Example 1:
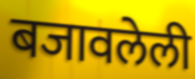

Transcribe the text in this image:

बजावलेली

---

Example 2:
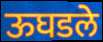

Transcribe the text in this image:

ऊघडले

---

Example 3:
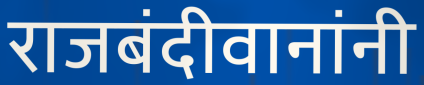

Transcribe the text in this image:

राजबंदीवानांनी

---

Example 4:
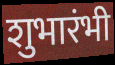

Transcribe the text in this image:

शुभारंभी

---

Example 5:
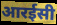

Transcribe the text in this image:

आरईसी